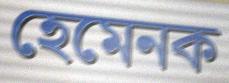
হেমেনক